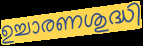
ഉച്ചാരണശുദ്ധി